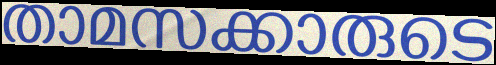
താമസക്കാരുടെ